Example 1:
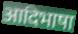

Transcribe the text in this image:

आदिभाषा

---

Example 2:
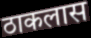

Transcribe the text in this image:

ठाकलास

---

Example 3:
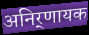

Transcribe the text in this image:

अनिर्णायक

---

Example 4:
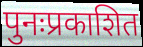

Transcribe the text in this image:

पुनःप्रकाशित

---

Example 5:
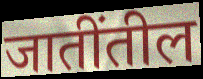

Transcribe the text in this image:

जातींतील